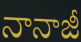
నానాజీ